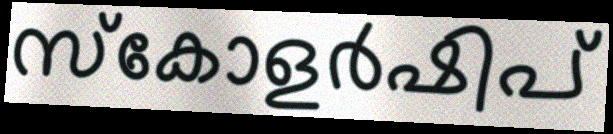
സ്കോളർഷിപ്